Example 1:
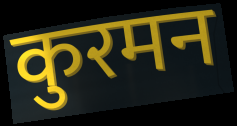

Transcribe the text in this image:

कुरमन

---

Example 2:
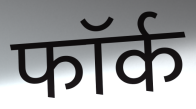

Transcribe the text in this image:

फॉर्क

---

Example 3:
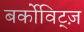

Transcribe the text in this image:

बर्कोविट्ज़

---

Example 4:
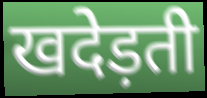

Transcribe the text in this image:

खदेड़ती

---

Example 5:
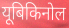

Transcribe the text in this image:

यूबिकिनोल